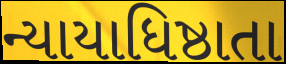
ન્યાયાધિષ્ઠાતા